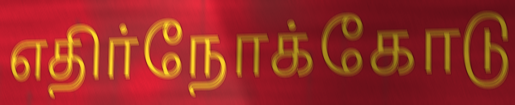
எதிர்நோக்கோடு